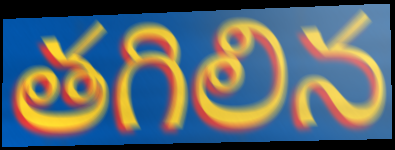
తగిలిన